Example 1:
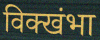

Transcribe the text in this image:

विक्खंभा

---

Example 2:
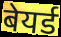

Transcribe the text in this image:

बेयर्ड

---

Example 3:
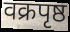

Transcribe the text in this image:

वक्रपृष्ठ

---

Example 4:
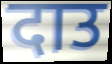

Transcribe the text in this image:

दाउ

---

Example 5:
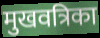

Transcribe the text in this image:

मुखवत्रिका